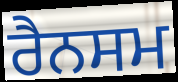
ਰੈਨਸਮ